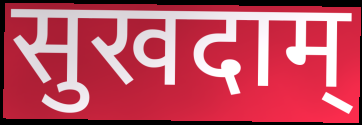
सुखदाम्